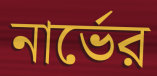
নার্ভের